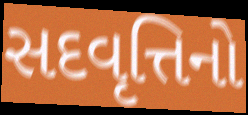
સદવૃત્તિનો